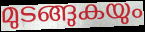
മുടങ്ങുകയും